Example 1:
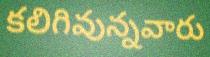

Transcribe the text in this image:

కలిగివున్నవారు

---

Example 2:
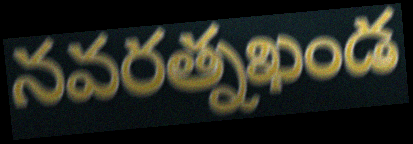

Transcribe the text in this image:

నవరత్నఖండ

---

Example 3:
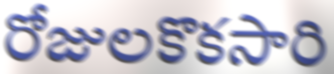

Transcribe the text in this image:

రోజులకొకసారి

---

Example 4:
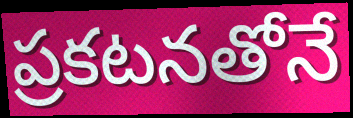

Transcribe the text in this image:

ప్రకటనతోనే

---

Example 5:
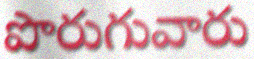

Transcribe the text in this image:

పొరుగువారు